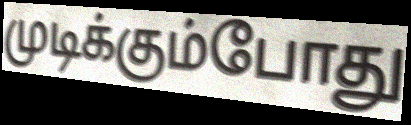
முடிக்கும்போது